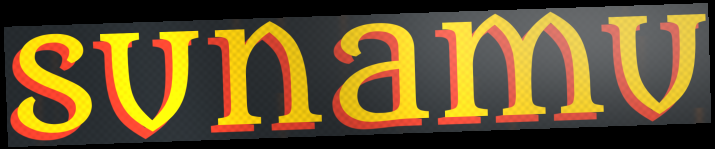
sunamu